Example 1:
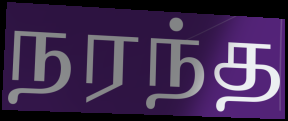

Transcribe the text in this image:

நரந்த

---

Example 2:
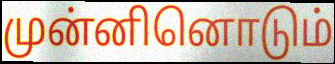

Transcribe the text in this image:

முன்னினொடும்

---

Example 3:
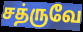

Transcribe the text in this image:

சத்ருவே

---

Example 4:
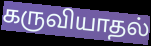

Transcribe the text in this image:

கருவியாதல்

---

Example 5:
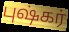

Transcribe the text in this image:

புஷ்கர்